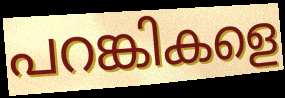
പറങ്കികളെ